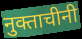
नुक्ताचीनी